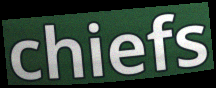
chiefs